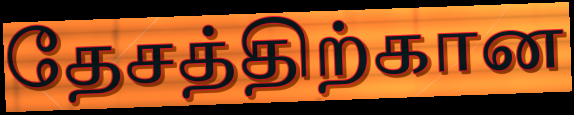
தேசத்திற்கான